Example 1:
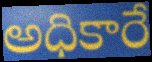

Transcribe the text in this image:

అధికారే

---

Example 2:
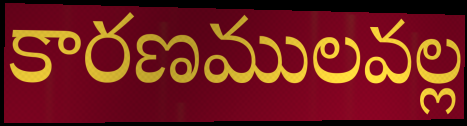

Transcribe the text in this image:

కారణములవల్ల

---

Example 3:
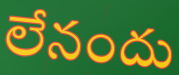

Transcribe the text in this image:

లేనందు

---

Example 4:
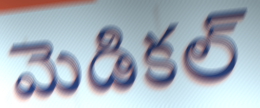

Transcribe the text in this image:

మెడికల్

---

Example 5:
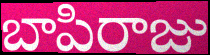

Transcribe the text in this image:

బాపిరాజు